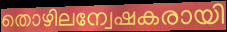
തൊഴിലന്വേഷകരായി